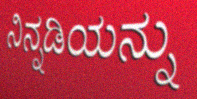
ನಿನ್ನಡಿಯನ್ನು